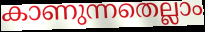
കാണുന്നതെല്ലാം